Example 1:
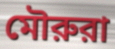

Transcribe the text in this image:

মৌরুরা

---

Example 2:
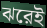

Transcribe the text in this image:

ঝরেই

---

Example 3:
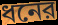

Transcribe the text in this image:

ধনের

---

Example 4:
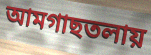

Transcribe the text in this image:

আমগাছতলায়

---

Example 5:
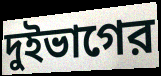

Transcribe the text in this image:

দুইভাগের